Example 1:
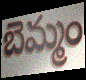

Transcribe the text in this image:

బెమ్మం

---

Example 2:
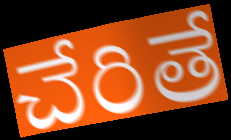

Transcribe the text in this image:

చేరితే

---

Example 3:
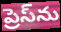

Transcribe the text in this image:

ప్రెస్‌ను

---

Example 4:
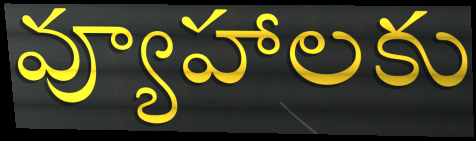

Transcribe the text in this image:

వ్యూహాలకు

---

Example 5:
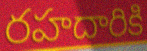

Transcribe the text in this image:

రహదారికి